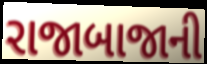
રાજાબાજાની